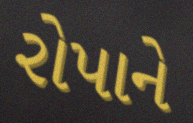
રોપાને